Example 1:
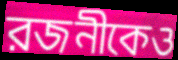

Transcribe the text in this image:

রজনীকেও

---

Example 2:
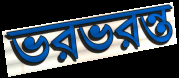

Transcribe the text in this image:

ভরভরন্ত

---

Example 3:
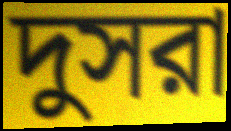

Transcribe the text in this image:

দুসরা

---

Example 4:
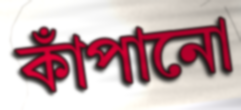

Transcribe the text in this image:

কাঁপানো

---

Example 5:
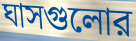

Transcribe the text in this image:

ঘাসগুলোর